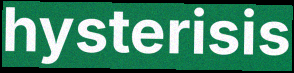
hysterisis